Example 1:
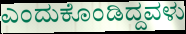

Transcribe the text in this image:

ಎಂದುಕೊಂಡಿದ್ದವಳು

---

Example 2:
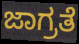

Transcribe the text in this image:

ಜಾಗ್ರತೆ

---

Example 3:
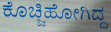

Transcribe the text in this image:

ಕೊಚ್ಚಿಹೋಗಿದ್ದ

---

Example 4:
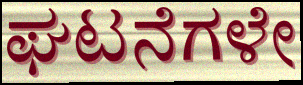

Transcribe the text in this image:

ಘಟನೆಗಳೇ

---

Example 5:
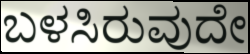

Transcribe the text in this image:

ಬಳಸಿರುವುದೇ